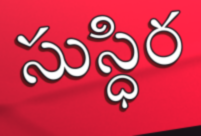
సుస్ధిర